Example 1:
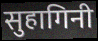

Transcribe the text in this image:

सुहागिनी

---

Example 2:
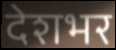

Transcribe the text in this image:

देशभर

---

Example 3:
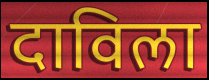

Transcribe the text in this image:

दाविला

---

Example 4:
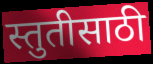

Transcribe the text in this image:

स्तुतीसाठी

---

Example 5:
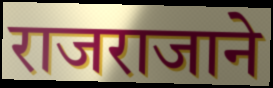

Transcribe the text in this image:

राजराजाने